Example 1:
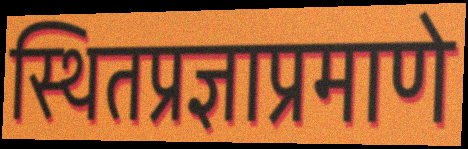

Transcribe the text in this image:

स्थितप्रज्ञाप्रमाणे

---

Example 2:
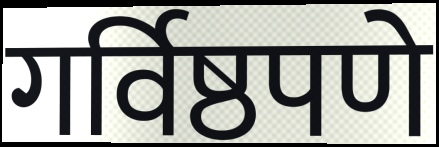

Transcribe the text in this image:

गर्विष्ठपणे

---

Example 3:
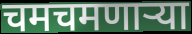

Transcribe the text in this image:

चमचमणार्‍या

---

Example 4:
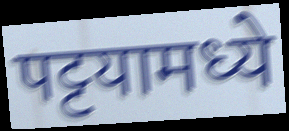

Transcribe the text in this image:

पट्टयामध्ये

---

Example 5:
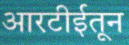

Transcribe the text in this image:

आरटीईतून